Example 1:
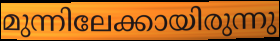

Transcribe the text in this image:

മുന്നിലേക്കായിരുന്നു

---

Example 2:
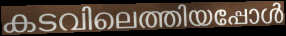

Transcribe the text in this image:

കടവിലെത്തിയപ്പോൾ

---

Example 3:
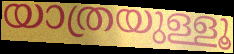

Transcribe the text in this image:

യാത്രയുള്ളൂ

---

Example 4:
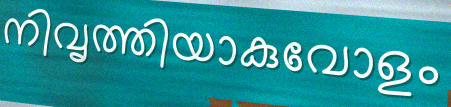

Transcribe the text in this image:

നിവൃത്തിയാകുവോളം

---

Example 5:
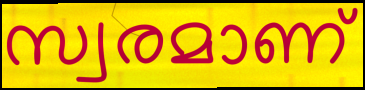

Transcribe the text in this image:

സ്വരമാണ്